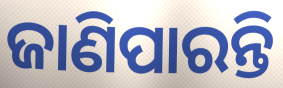
ଜାଣିପାରନ୍ତି